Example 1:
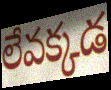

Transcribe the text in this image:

లేవక్కడ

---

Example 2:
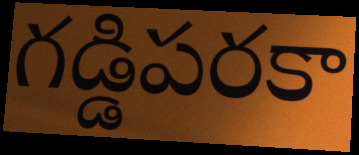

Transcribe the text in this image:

గడ్డిపరకా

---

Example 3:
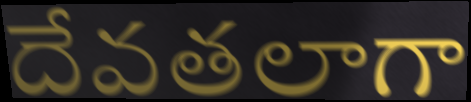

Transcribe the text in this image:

దేవతలాగా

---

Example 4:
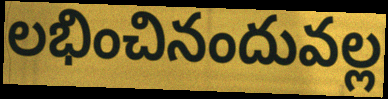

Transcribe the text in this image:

లభించినందువల్ల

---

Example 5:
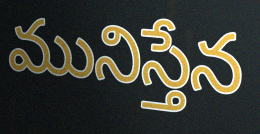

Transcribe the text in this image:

మునిస్తేన